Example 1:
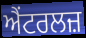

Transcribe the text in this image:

ਐਂਟਰਲਜ਼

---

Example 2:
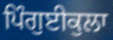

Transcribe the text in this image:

ਪਿੰਗੁਈਕੁਲਾ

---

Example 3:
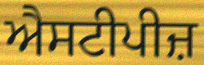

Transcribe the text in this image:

ਐਸਟੀਪੀਜ਼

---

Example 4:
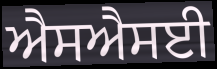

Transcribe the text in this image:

ਐਸਐਸਈ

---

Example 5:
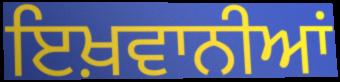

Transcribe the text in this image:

ਇਖ਼ਵਾਨੀਆਂ